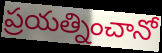
ప్రయత్నించానో